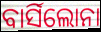
ବାର୍ସିଲୋନା